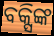
ବକ୍ସିଙ୍କ